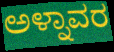
ಅಳ್ನಾವರ